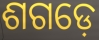
ଶଗଡ଼େ